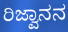
ರಿಜ್ವಾನನ